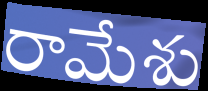
రామేశు